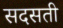
सदसती